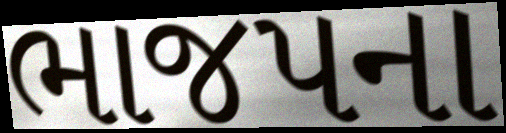
ભાજપના